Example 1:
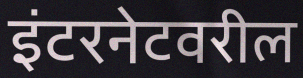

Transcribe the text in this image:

इंटरनेटवरील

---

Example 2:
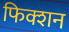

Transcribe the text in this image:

फिक्‍शन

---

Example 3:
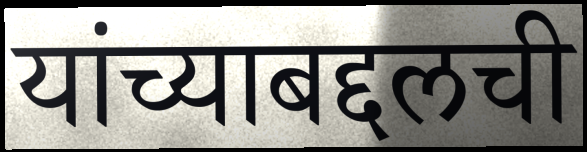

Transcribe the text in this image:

यांच्याबद्दलची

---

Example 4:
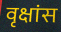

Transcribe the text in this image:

वृक्षांस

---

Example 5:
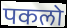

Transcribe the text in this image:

पकलो